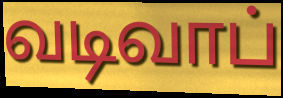
வடிவாப்